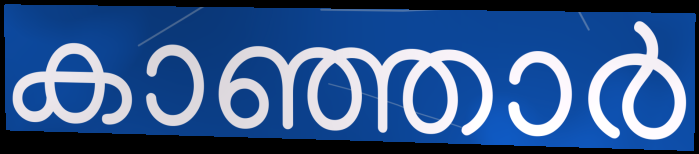
കാഞ്ഞാർ